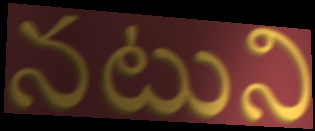
నటుని